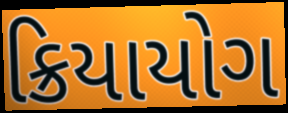
ક્રિયાયોગ